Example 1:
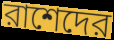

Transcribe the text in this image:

রাশেদের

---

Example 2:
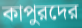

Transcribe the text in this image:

কাপুরদের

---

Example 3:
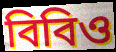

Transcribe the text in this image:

বিবিও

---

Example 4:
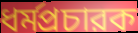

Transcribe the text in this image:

ধর্মপ্রচারক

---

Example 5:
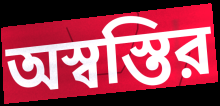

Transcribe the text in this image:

অস্বস্তির